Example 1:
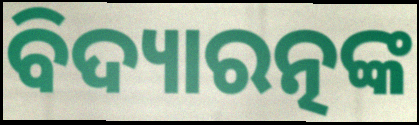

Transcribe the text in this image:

ବିଦ୍ୟାରତ୍ନଙ୍କ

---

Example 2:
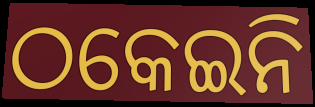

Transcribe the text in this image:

ଠକେଇନି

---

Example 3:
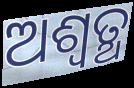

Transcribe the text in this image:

ଅଶ୍ଵତ୍ଥ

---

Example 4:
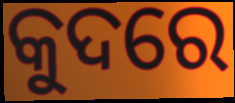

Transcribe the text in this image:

କୁଦରେ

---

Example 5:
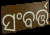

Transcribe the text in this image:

ସଂବର୍ତ୍ତ